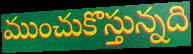
ముంచుకొస్తున్నది